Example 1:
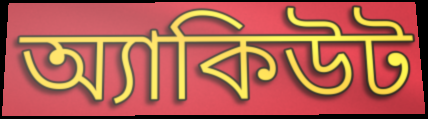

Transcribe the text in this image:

অ্যাকিউট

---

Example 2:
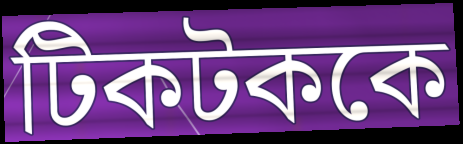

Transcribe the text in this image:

টিকটককে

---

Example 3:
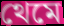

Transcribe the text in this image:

থেমে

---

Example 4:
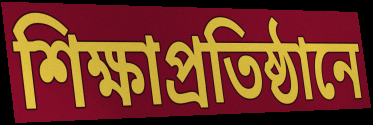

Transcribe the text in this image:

শিক্ষাপ্রতিষ্ঠানে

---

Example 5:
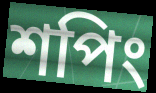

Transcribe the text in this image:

শপিং